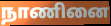
நாணினை